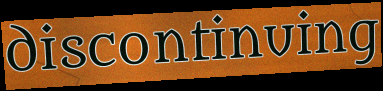
discontinuing